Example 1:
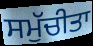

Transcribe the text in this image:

ਸਮੁੱਚੀਤਾ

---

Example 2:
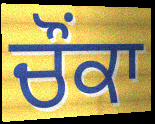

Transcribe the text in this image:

ਚੌਂਕਾ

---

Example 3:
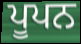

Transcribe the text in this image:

ਪੂਪਨ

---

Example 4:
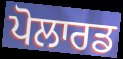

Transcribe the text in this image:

ਪੋਲਾਰਡ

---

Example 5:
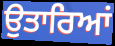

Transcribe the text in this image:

ਉਤਾਰਿਆਂ